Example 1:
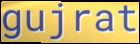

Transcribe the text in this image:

gujrat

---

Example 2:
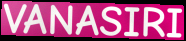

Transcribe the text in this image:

VANASIRI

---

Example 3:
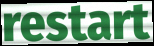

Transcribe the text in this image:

restart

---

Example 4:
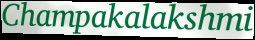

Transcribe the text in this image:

Champakalakshmi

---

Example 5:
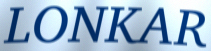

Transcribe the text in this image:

LONKAR